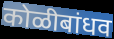
कोळीबांधव